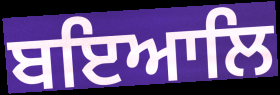
ਬਇਆਲਿ